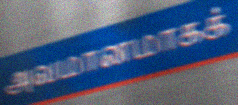
அவமானமாகக்